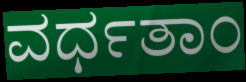
ವರ್ಧತಾಂ